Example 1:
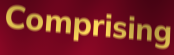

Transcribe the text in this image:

Comprising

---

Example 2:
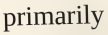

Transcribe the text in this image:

primarily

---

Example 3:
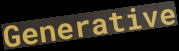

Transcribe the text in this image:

Generative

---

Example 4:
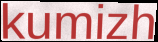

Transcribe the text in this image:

kumizh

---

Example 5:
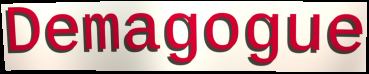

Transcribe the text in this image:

Demagogue